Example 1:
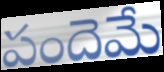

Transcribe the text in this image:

పందెమే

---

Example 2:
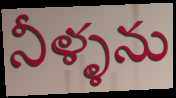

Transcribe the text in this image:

నీళ్ళను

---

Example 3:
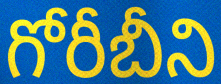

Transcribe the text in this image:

గోరీబీని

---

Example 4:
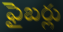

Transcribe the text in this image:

ఫైబర్లు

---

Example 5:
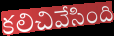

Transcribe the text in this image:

కలిచివేసింది